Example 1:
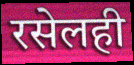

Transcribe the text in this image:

रसेलही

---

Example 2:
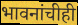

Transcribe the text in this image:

भावनांचीही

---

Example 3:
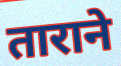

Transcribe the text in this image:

ताराने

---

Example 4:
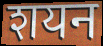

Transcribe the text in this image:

शयन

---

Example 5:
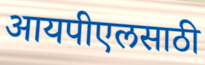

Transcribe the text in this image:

आयपीएलसाठी